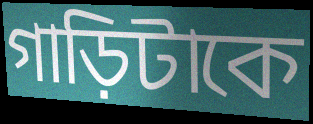
গাড়িটাকে